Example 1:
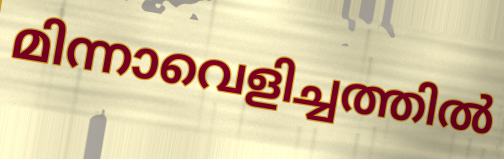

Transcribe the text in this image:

മിന്നാവെളിച്ചത്തിൽ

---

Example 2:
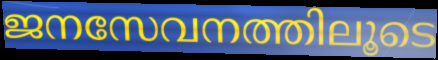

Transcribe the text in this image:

ജനസേവനത്തിലൂടെ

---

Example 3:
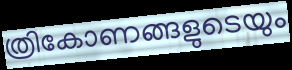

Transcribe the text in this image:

ത്രികോണങ്ങളുടെയും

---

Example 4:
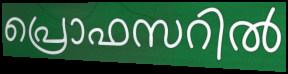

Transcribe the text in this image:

പ്രൊഫസറിൽ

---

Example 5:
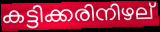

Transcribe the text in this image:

കട്ടിക്കരിനിഴല്